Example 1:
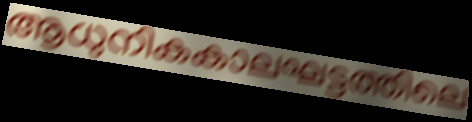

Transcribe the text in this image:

ആധുനികകാലഘട്ടത്തിലെ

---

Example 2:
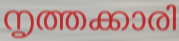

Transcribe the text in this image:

നൃത്തക്കാരി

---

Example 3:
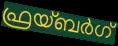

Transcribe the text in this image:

ഫ്രയ്ബർഗ്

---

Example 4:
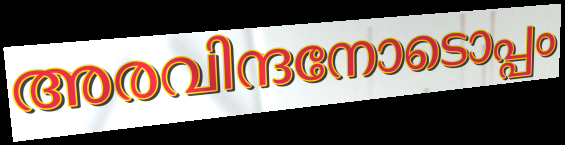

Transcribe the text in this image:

അരവിന്ദനോടൊപ്പം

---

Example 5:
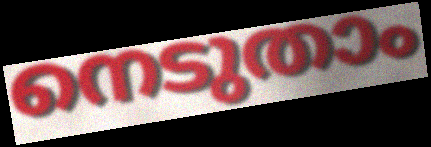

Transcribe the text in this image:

നെടുതാം